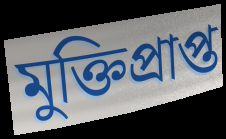
মুক্তিপ্রাপ্ত